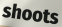
shoots